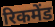
रिकमेंड